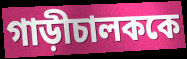
গাড়ীচালককে